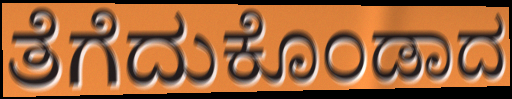
ತೆಗೆದುಕೊಂಡಾದ